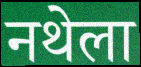
नथेला